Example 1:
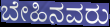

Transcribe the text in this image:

ಬೇಹಿನವರು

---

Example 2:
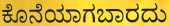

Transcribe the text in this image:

ಕೊನೆಯಾಗಬಾರದು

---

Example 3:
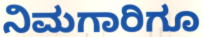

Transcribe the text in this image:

ನಿಮಗಾರಿಗೂ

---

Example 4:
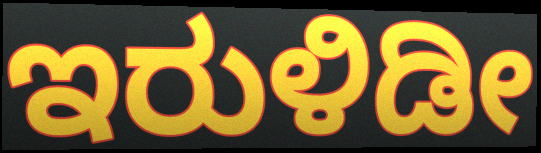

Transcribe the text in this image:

ಇರುಳಿಡೀ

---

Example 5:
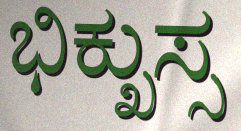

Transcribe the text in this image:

ಭಿಕ್ಖುಸ್ಸ